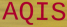
AQIS